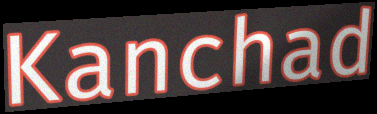
Kanchad